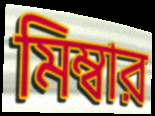
মিম্বার